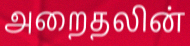
அறைதலின்